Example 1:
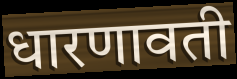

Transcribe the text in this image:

धारणावती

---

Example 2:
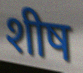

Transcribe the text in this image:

शीष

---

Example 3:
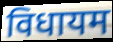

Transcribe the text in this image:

विधायम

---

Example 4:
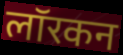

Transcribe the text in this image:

लॉरकन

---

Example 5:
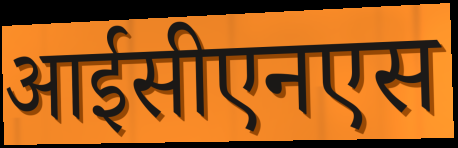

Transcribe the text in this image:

आईसीएनएस